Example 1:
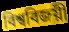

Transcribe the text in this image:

বিশ্ববিজয়ী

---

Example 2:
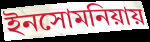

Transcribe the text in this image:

ইনসোমনিয়ায়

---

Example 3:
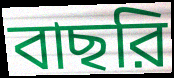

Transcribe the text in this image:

বাছরি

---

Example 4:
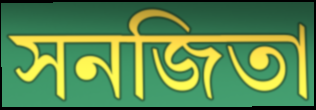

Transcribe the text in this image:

সনজিতা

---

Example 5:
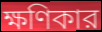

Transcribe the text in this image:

ক্ষণিকার